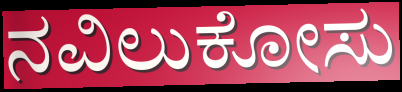
ನವಿಲುಕೋಸು